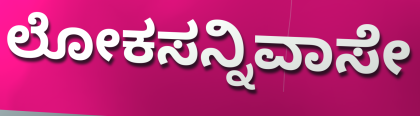
ಲೋಕಸನ್ನಿವಾಸೇ